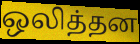
ஒலித்தன